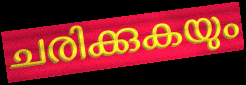
ചരിക്കുകയും